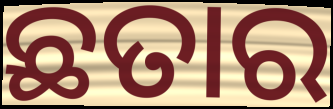
ଛତାର